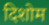
दिशोम